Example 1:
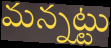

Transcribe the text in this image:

మన్నట్టు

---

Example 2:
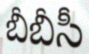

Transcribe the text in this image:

బీబీసీ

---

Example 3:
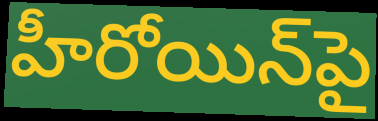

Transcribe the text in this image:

హీరోయిన్‌పై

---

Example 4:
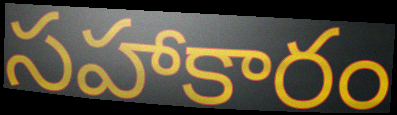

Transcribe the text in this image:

సహాకారం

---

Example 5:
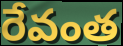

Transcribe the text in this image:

రేవంత